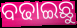
ବଢାଇଛୁ